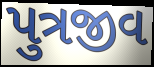
પુત્રજીવ